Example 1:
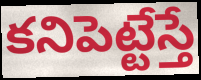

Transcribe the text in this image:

కనిపెట్టేస్తే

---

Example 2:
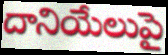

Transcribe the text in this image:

దానియేలుపై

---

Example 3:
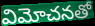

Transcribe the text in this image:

విమోచనతో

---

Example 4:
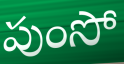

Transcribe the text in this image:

పుంసో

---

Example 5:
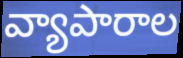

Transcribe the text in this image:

వ్యాపారాల